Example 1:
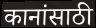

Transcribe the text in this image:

कानांसाठी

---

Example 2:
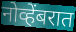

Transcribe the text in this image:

नोव्हेंबरात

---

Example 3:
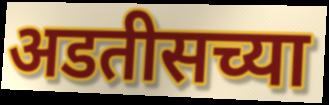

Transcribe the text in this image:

अडतीसच्या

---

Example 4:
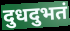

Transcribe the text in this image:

दुधदुभतं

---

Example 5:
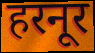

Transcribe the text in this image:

हरनूर